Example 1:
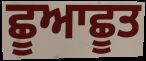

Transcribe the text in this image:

ਛੂਆਛੂਤ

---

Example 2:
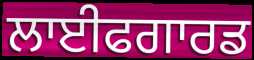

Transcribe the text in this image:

ਲਾਈਫਗਾਰਡ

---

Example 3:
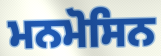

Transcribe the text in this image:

ਮਨਮੋਸਿਨ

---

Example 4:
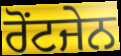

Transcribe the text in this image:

ਰੋਂਟਜੇਨ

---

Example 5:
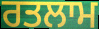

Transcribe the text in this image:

ਰਤਲਾਮ